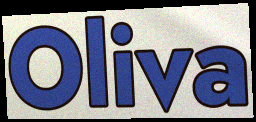
Oliva